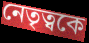
নেতৃত্বকে